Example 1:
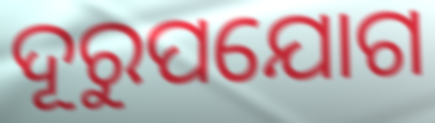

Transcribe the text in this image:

ଦୂରୁପଯୋଗ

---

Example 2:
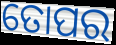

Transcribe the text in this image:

ତୋପର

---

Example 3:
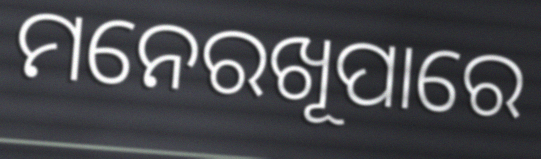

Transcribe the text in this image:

ମନେରଖୂପାରେ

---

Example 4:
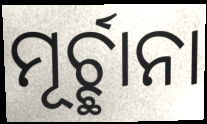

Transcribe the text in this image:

ମୂର୍ଚ୍ଛାନା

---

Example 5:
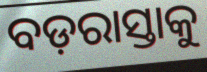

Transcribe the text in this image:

ବଡ଼ରାସ୍ତାକୁ